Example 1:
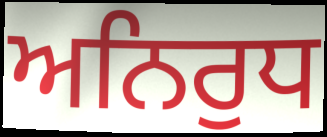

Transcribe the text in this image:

ਅਨਿਰੁਧ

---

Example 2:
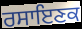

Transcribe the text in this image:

ਰਸਾਇਣਕ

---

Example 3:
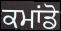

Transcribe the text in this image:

ਕਮਾਂਡੋ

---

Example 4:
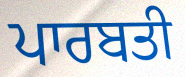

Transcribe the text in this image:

ਪਾਰਬਤੀ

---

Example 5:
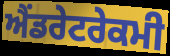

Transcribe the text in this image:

ਐਂਡਰੇਟਰੇਕਮੀ